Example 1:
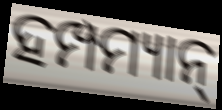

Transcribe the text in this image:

ହମ୍ପମ୍ୟାନ୍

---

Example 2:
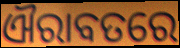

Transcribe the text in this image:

ଐରାବତରେ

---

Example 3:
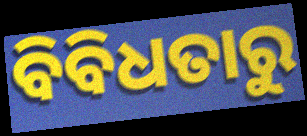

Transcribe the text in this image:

ବିବିଧତାରୁ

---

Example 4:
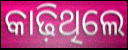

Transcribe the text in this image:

କାଢ଼ିଥିଲେ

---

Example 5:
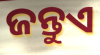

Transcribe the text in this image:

ଜନ୍ତୁଏ